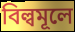
বিল্বমূলে